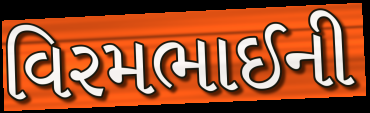
વિરમભાઈની